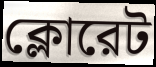
ক্লোরেট